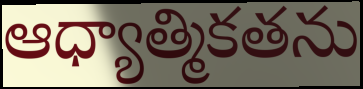
ఆధ్యాత్మికతను